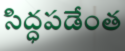
సిద్ధపడేంత